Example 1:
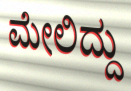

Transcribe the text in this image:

ಮೇಲಿದ್ದು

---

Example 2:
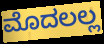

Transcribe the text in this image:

ಮೊದಲಲ್ಲ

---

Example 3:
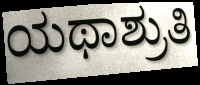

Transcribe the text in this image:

ಯಥಾಶ್ರುತಿ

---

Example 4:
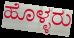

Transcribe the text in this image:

ಹೊಳ್ಳರು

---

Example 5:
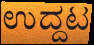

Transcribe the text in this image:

ಉದ್ದಟ